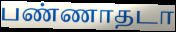
பண்ணாதடா